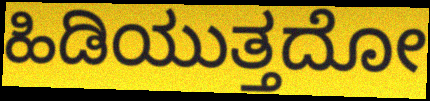
ಹಿಡಿಯುತ್ತದೋ